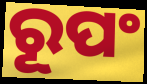
ରୂପଂ